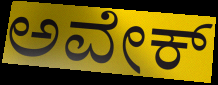
ಅವೇಕ್